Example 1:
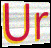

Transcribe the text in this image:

Ur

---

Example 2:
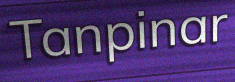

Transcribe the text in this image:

Tanpinar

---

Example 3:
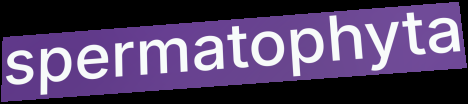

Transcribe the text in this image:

spermatophyta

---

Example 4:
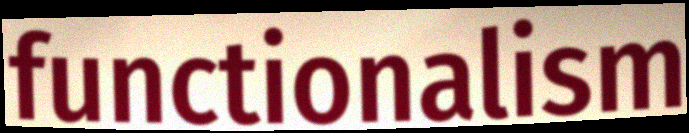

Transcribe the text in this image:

functionalism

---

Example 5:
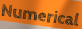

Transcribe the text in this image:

Numerical